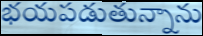
భయపడుతున్నాను